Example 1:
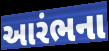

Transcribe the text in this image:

આરંભના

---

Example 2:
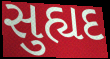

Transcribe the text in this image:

સુહ્યદ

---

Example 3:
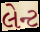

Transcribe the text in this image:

લેન્ટ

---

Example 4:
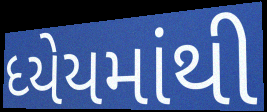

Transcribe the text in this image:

ધ્યેયમાંથી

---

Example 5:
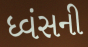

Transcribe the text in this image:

ધ્વંસની